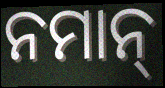
ନମାନ୍